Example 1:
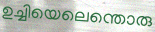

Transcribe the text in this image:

ഉച്ചിയെലെന്തൊരു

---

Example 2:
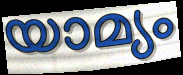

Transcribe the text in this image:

യാമ്യം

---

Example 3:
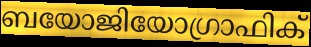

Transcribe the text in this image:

ബയോജിയോഗ്രാഫിക്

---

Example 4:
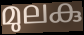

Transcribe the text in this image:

മുലകു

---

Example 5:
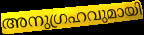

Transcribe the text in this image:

അനുഗ്രഹവുമായി